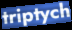
triptych